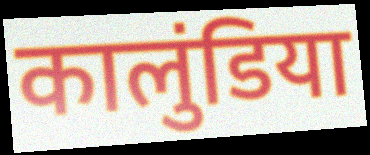
कालुंडिया